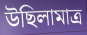
উছিলামাত্র